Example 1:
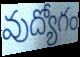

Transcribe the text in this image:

వుద్యోగం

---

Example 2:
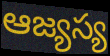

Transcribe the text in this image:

ఆజ్యస్య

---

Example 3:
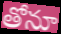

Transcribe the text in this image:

తోనూ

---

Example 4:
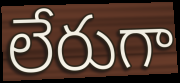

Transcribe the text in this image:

లేరుగా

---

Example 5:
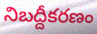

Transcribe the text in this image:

నిబద్దీకరణం